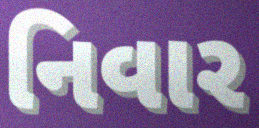
નિવાર